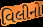
વિલીનો